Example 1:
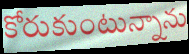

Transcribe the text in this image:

కోరుకుంటున్నాను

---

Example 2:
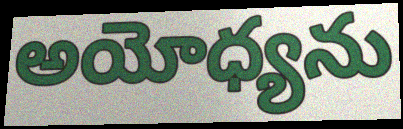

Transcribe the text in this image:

అయోధ్యను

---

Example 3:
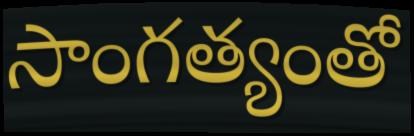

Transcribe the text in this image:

సాంగత్యంతో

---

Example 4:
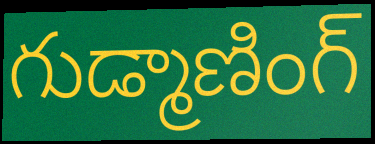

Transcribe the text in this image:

గుడ్మాణింగ్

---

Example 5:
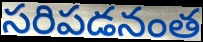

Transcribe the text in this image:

సరిపడనంత